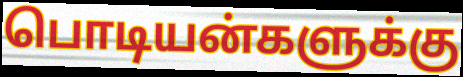
பொடியன்களுக்கு